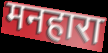
मनहारा